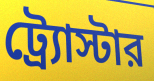
ট্র্যোস্টার